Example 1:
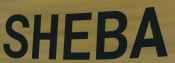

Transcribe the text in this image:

SHEBA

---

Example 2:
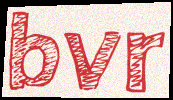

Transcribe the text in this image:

bvr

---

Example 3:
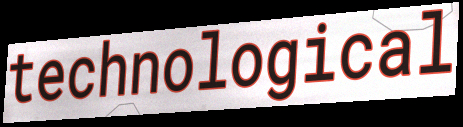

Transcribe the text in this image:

technological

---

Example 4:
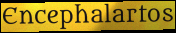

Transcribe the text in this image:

Encephalartos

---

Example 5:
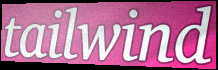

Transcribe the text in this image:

tailwind